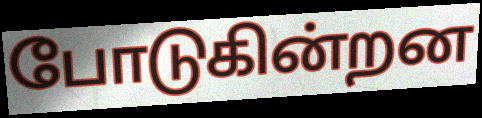
போடுகின்றன